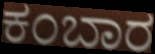
ಕಂಬಾರ